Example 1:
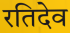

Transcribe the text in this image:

रतिदेव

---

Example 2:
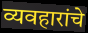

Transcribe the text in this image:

व्यवहारांचे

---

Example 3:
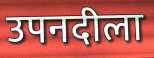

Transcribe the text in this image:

उपनदीला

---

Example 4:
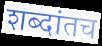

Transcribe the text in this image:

शब्दांतच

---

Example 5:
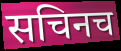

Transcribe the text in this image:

सचिनच